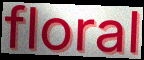
floral